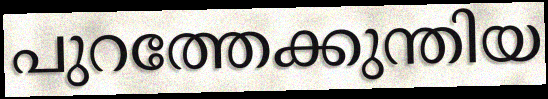
പുറത്തേക്കുന്തിയ